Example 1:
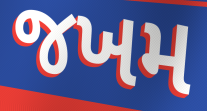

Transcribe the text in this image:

જખમ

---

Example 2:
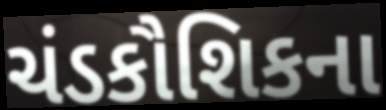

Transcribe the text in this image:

ચંડકૌશિકના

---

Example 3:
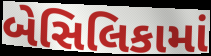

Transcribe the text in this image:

બેસિલિકામાં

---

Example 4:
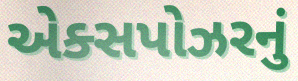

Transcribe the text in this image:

એક્સપોઝરનું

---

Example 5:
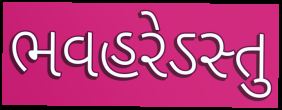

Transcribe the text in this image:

ભવહરેઽસ્તુ